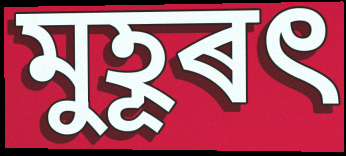
মুহূৰৎ